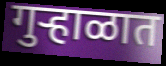
गुऱ्हाळात